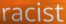
racist